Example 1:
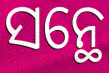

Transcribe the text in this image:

ସନ୍ଥେ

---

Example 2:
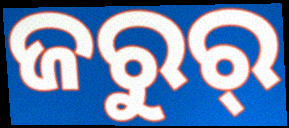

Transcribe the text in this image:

ଜରୁର୍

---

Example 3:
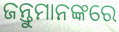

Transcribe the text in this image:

ଜନ୍ତୁମାନଙ୍କରେ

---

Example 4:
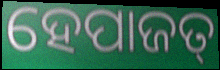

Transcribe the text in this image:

ହେପାଜତ୍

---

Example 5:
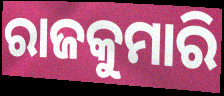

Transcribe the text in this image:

ରାଜକୁମାରି